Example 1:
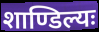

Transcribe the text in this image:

शाण्डिल्यः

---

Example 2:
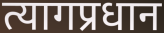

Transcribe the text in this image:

त्यागप्रधान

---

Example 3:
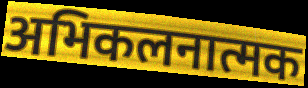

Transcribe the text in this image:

अभिकलनात्मक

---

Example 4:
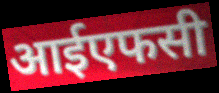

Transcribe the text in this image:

आईएफसी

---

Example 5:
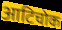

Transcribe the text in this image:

आटिचोक